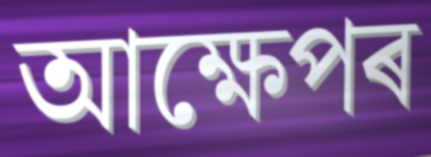
আক্ষেপৰ